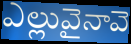
ఎల్లువైనావె